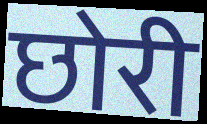
छोरी